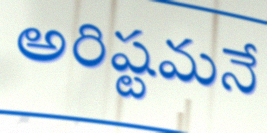
అరిష్టమనే